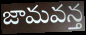
జామవన్త